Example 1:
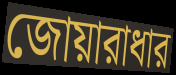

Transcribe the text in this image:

জোয়ারাধার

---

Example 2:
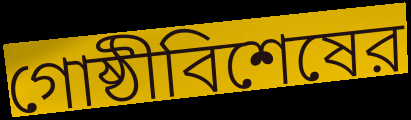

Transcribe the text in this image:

গোষ্ঠীবিশেষের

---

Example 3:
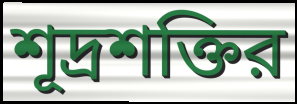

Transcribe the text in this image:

শূদ্রশক্তির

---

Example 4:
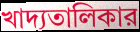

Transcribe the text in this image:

খাদ্যতালিকার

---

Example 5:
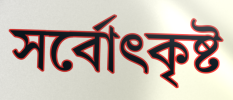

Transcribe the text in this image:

সর্বোৎকৃষ্ট